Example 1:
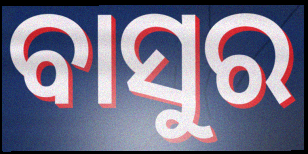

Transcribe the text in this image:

ବାସୁର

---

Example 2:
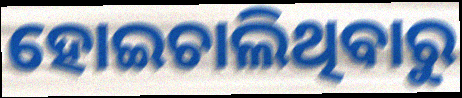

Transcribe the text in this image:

ହୋଇଚାଲିଥିବାରୁ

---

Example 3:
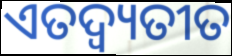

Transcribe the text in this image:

ଏତଦ୍ବ୍ୟତୀତ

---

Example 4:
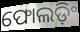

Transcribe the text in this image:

ଫୋଲଡ଼ିଂ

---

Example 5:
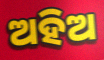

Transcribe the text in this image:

ଅହିଅ